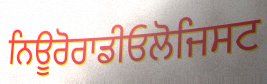
ਨਿਊਰੋਰਾਡੀਓਲੋਜਿਸਟ